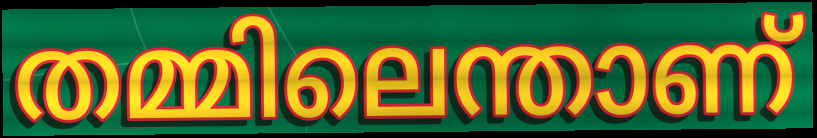
തമ്മിലെന്താണ്